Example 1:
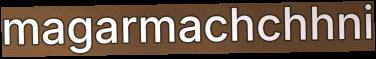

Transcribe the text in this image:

magarmachchhni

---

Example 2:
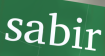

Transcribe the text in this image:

sabir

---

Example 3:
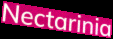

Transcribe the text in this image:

Nectarinia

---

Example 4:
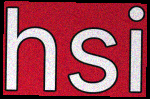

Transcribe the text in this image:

hsi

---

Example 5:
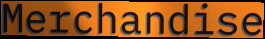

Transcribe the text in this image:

Merchandise